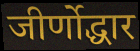
जीर्णोद्धार